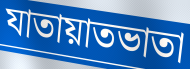
যাতায়াতভাতা